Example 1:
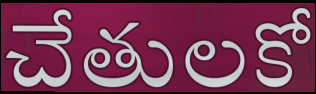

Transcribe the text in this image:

చేతులకో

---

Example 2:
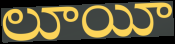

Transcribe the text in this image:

లూయీ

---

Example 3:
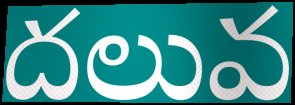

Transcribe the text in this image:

దలువ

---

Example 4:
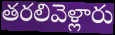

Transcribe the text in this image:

తరలివెళ్లారు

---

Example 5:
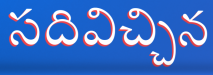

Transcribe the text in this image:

సదివిచ్చిన